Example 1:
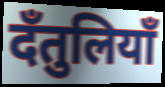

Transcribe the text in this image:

दँतुलियाँ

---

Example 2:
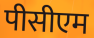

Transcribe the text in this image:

पीसीएम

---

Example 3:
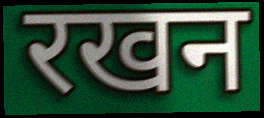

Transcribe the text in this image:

रखन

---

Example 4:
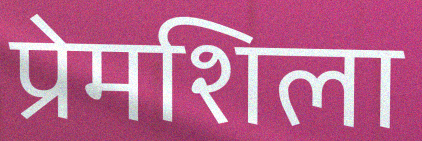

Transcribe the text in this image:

प्रेमशिला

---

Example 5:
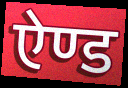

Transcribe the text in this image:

ऐण्ड